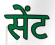
सेंट